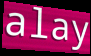
alay